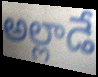
అల్లాడే